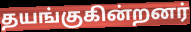
தயங்குகின்றனர்